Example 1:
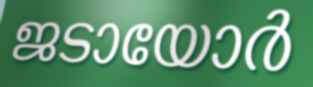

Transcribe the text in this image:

ജടായോർ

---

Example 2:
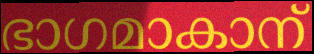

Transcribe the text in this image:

ഭാഗമാകാന്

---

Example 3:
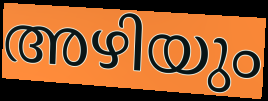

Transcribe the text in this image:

അഴിയും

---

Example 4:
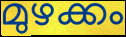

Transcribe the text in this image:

മുഴക്കം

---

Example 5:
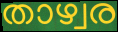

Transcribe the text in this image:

താഴ്വര